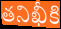
తనిఖీకి